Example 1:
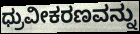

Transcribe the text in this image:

ಧ್ರುವೀಕರಣವನ್ನು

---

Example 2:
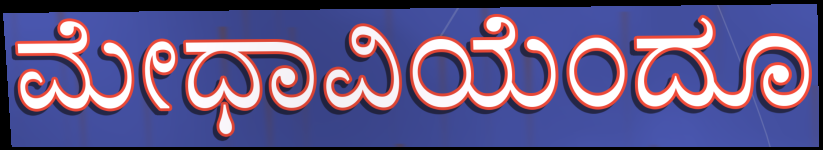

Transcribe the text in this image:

ಮೇಧಾವಿಯೆಂದೂ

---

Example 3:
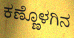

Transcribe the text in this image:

ಕಣ್ಣೊಳಗಿನ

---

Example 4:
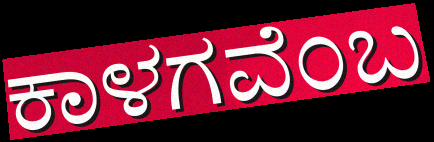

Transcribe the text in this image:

ಕಾಳಗವೆಂಬ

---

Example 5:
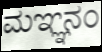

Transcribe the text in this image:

ಮಞ್ಞನಂ